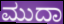
ಮುದಾ